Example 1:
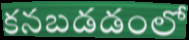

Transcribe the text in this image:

కనబడడంలో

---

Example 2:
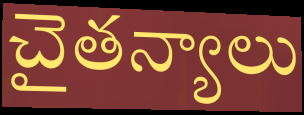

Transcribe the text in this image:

చైతన్యాలు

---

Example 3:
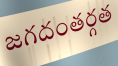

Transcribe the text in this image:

జగదంతర్గత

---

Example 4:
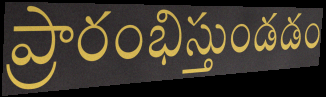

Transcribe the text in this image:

ప్రారంభిస్తుండడం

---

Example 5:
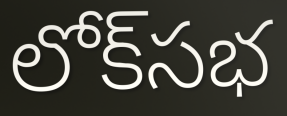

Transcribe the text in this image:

లోక్‌సభ